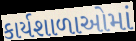
કાર્યશાળાઓમાં